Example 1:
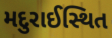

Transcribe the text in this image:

મદુરાઈસ્થિત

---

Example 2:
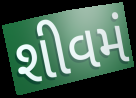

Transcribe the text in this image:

શીવમં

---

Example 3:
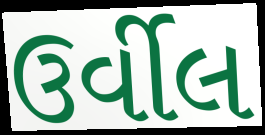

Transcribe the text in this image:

ઉર્વીલ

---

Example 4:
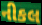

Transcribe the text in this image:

નીકલ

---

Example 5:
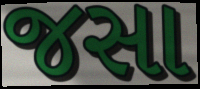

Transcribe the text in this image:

જસા